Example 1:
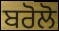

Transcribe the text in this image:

ਬਰੋਲੋ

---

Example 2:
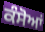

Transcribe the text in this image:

ਕੰਸੋਆਂ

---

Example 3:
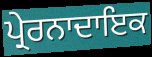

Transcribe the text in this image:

ਪ੍ਰੇਰਨਾਦਾਇਕ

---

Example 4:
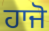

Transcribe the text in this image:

ਹਾਜੋ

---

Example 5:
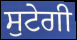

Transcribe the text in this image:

ਸੁਟੇਗੀ